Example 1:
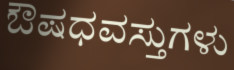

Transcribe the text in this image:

ಔಷಧವಸ್ತುಗಳು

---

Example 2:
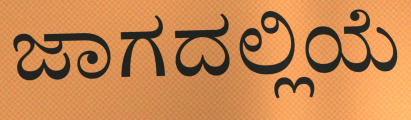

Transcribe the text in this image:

ಜಾಗದಲ್ಲಿಯೆ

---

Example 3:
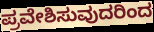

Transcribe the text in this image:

ಪ್ರವೇಶಿಸುವುದರಿಂದ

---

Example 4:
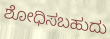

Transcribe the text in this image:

ಶೋಧಿಸಬಹುದು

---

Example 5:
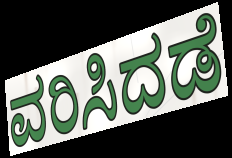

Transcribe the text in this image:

ವರಿಸಿದಡೆ